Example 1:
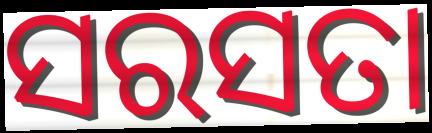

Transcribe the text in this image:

ସରସତା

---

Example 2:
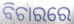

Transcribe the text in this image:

ବିଚାରରେ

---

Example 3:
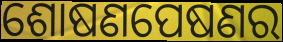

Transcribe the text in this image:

ଶୋଷଣପେଷଣର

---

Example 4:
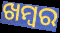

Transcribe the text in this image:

ଖମ୍ବର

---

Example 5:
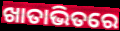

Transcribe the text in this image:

ଖାତାଭିତରେ